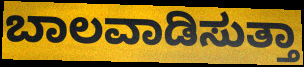
ಬಾಲವಾಡಿಸುತ್ತಾ